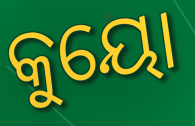
କୁୟୋ